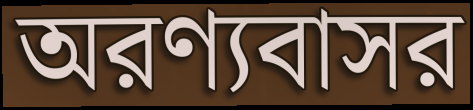
অরণ্যবাসর